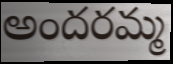
అందరమ్మ